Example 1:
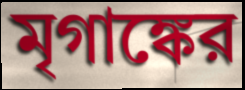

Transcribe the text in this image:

মৃগাঙ্কের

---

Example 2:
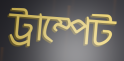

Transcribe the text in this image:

ট্রাম্পেট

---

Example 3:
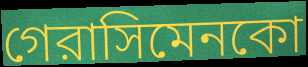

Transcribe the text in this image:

গেরাসিমেনকো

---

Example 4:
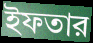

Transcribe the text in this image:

ইফতার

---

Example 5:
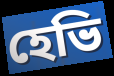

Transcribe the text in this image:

হেভি